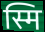
स्मि